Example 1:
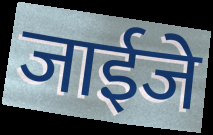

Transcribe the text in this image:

जाईजे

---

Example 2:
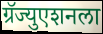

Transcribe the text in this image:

ग्रॅज्युएशनला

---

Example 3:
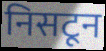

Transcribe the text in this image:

निसटून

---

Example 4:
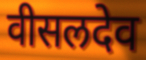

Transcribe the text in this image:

वीसलदेव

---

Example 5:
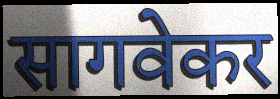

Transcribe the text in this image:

सागवेकर